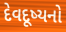
દેવદૂષ્યનો